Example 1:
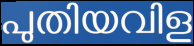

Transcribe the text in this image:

പുതിയവിള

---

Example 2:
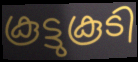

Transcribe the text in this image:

കൂട്ടുകൂടി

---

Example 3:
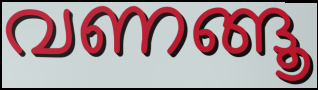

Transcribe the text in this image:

വണങ്ങൂ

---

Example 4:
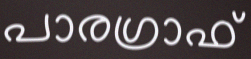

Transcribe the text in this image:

പാരഗ്രാഫ്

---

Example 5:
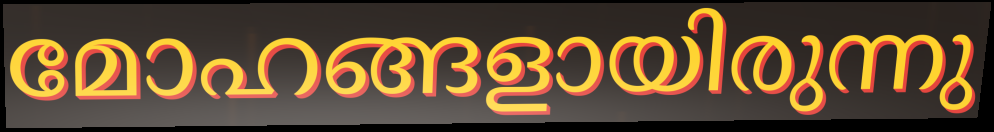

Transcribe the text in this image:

മോഹങ്ങളായിരുന്നു